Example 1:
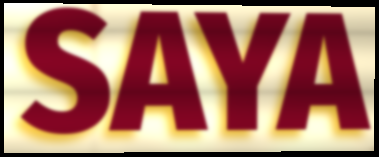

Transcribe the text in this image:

SAYA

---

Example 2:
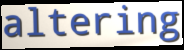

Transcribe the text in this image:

altering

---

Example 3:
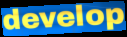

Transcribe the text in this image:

develop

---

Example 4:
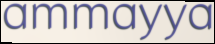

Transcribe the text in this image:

ammayya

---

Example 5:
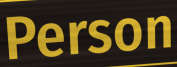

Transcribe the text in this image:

Person